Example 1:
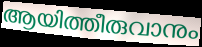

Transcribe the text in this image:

ആയിത്തീരുവാനും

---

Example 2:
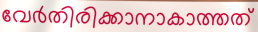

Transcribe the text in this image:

വേർതിരിക്കാനാകാത്തത്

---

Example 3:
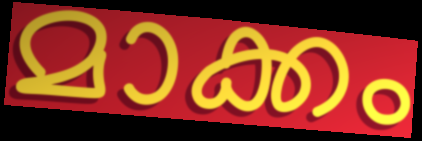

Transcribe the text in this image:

മാക്കം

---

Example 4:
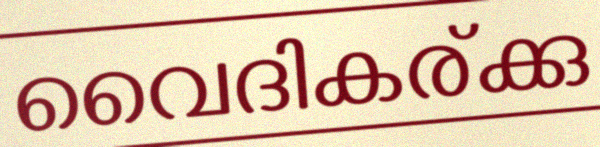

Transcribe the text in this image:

വൈദികര്ക്കു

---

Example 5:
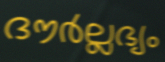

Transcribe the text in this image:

ദൗർല്ലഭ്യം